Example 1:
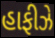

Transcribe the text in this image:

હાફીઝે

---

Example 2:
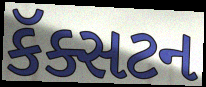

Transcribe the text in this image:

કૅક્સટન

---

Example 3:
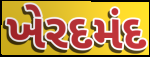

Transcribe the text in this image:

ખેરદમંદ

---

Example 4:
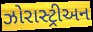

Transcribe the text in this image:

ઝોરાસ્ટ્રીઅન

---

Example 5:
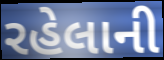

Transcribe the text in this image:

રહેલાની